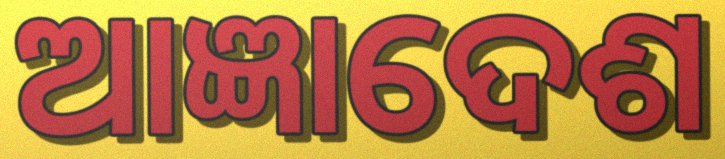
ଆଜ୍ଞାଦେଶ